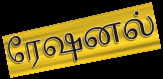
ரேஷனல்